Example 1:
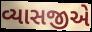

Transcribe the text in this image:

વ્યાસજીએ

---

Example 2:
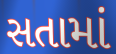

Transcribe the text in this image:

સતામાં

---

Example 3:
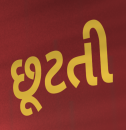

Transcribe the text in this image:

છૂટતી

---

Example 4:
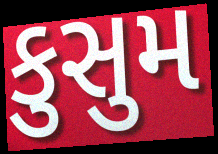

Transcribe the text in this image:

કુસુમ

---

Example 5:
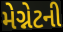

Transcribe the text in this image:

મેગ્નેટની